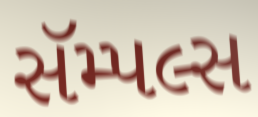
સૅમ્પલ્સ